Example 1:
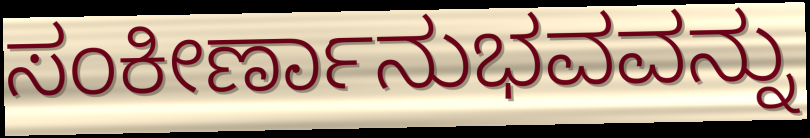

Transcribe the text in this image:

ಸಂಕೀರ್ಣಾನುಭವವನ್ನು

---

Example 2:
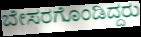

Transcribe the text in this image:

ಬೇಸರಗೊಂಡಿದ್ದರು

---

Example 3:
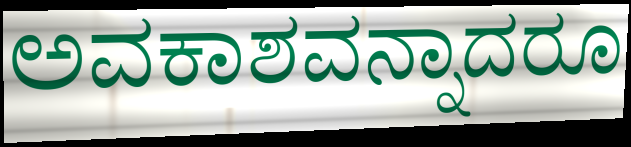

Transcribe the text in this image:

ಅವಕಾಶವನ್ನಾದರೂ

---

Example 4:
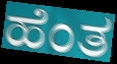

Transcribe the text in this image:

ಹೆಂತ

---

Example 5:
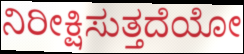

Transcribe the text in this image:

ನಿರೀಕ್ಷಿಸುತ್ತದೆಯೋ